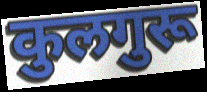
कुलगुरू